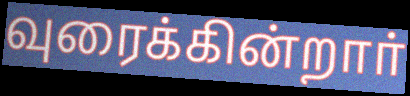
வுரைக்கின்றார்